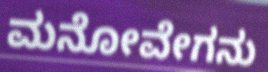
ಮನೋವೇಗನು